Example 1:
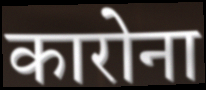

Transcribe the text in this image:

कारोना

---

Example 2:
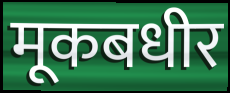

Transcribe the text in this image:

मूकबधीर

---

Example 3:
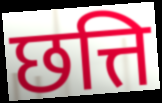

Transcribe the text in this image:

छत्ति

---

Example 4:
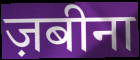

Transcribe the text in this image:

ज़बीना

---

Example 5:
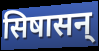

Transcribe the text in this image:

सिषासन्